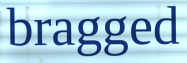
bragged